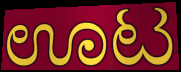
ಊಟ